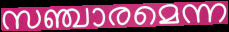
സഞ്ചാരമെന്ന